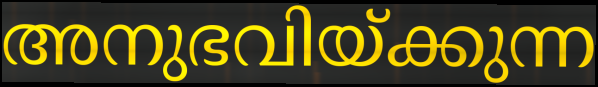
അനുഭവിയ്ക്കുന്ന